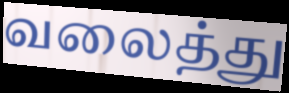
வலைத்து